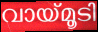
വായ്മൂടി